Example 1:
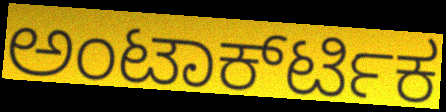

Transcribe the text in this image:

ಅಂಟಾರ್ಕ್‍ಟಿಕ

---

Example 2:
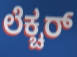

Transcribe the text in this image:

ಲೆಕ್ಚರ್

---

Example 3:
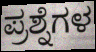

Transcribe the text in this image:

ಪ್ರಶ್ನೆಗಳ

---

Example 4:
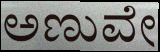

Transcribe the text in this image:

ಅಣುವೇ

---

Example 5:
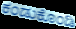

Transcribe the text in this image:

ಕಂಡುಕೊಂಡಿ